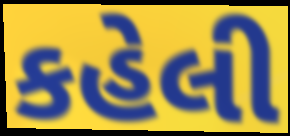
કહેલી